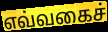
எவ்வகைச்